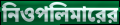
নিওপলিমারের